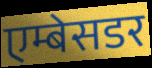
एम्‍बेसडर